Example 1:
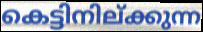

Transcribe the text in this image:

കെട്ടിനില്ക്കുന്ന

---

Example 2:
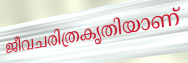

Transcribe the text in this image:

ജീവചരിത്രകൃതിയാണ്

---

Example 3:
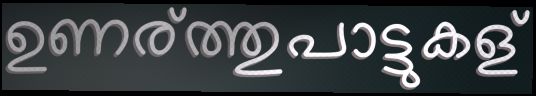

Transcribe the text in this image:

ഉണര്ത്തുപാട്ടുകള്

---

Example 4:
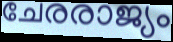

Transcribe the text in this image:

ചേരരാജ്യം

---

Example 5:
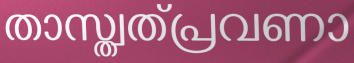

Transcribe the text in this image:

താസ്ത്വത്പ്രവണാ